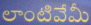
లాంటివేమీ